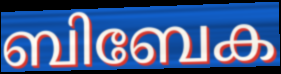
ബിബേക